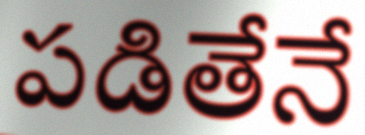
పడితేనే